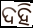
ଦହି